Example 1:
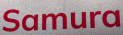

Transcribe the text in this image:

Samura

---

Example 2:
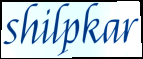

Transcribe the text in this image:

shilpkar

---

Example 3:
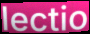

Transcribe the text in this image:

lectio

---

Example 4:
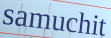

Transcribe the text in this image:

samuchit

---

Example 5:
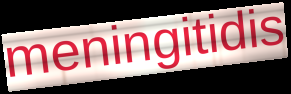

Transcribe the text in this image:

meningitidis